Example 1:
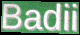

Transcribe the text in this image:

Badii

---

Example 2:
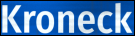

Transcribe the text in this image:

Kroneck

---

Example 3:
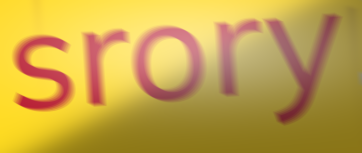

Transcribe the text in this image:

srory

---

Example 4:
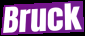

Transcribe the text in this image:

Bruck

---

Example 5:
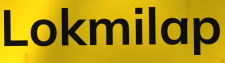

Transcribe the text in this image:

Lokmilap